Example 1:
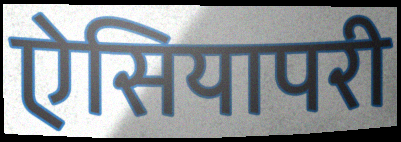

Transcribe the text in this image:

ऐसियापरी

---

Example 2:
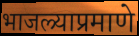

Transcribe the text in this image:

भाजल्याप्रमाणे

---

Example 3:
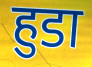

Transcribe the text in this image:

हुडा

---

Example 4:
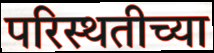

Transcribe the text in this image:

परिस्थतीच्या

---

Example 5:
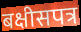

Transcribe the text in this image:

बक्षीसपत्र